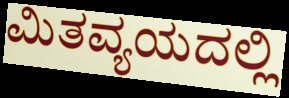
ಮಿತವ್ಯಯದಲ್ಲಿ